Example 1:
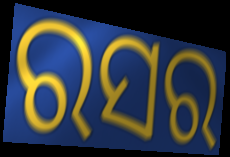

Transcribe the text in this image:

ରସର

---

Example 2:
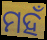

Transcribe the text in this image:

ମହଁ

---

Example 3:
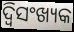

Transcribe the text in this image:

ଦ୍ୱିସଂଖ୍ୟକ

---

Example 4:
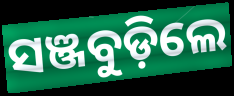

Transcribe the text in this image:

ସଞ୍ଜବୁଡ଼ିଲେ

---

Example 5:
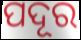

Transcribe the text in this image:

ପଦୂର